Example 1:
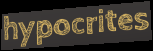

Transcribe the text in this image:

hypocrites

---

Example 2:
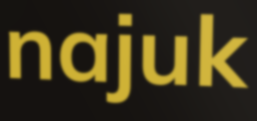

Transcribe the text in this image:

najuk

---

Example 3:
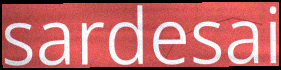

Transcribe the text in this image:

sardesai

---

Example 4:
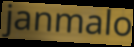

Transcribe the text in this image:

janmalo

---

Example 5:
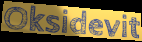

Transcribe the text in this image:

Oksidevit